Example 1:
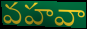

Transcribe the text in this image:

వహవా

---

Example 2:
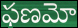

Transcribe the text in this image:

ఫణమో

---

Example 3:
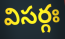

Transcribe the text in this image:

విసర్గః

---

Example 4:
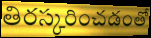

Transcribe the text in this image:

తిరస్కరించడంతో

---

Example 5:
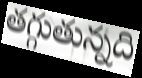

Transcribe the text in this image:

తగ్గుతున్నది